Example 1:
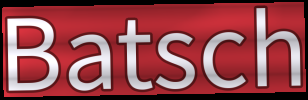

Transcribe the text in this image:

Batsch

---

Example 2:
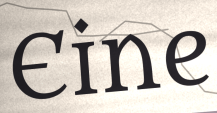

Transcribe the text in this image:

Eine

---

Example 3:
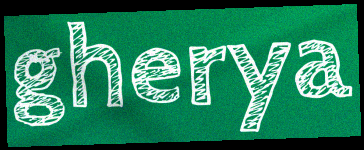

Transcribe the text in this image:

gherya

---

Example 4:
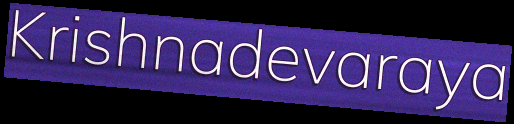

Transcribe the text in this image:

Krishnadevaraya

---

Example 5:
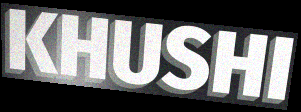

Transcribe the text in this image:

KHUSHI